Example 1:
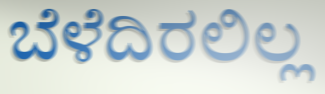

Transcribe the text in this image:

ಬೆಳೆದಿರಲಿಲ್ಲ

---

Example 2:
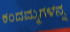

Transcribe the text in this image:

ಕಂದಮ್ಮಗಳನ್ನ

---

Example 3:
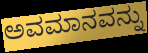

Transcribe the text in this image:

ಅವಮಾನವನ್ನು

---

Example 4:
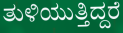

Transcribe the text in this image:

ತುಳಿಯುತ್ತಿದ್ದರೆ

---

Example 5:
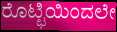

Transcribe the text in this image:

ರೊಟ್ಟಿಯಿಂದಲೇ